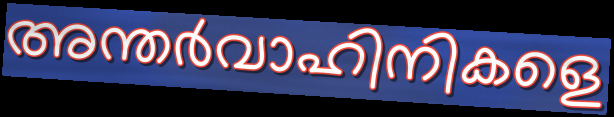
അന്തർവാഹിനികളെ